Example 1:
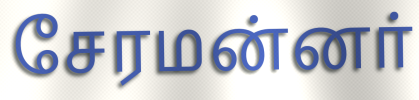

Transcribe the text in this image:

சேரமன்னர்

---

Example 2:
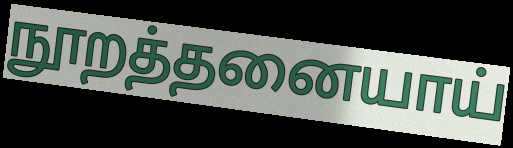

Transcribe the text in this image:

நூறத்தனையாய்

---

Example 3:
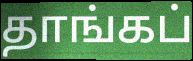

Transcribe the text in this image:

தாங்கப்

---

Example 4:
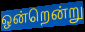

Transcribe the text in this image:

ஒன்றென்று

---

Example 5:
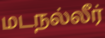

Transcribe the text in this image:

மடநல்லீர்